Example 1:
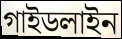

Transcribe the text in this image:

গাইডলাইন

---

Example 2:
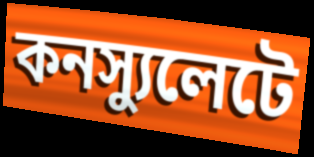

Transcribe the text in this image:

কনস্যুলেটে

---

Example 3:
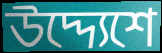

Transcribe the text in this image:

উদ্দ্যেশে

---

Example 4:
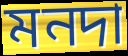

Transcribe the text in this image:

মনদা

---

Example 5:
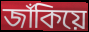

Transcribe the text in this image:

জাঁকিয়ে